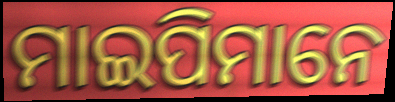
ମାଇପିମାନେ